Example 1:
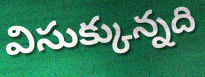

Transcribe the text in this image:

విసుక్కున్నది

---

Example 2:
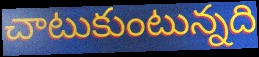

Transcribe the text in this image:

చాటుకుంటున్నది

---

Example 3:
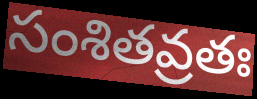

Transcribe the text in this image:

సంశితవ్రతః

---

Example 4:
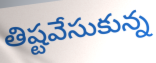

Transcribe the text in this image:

తిష్టవేసుకున్న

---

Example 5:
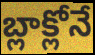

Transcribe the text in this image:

బ్లాక్లోనే